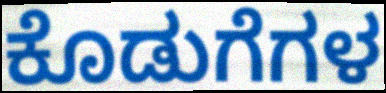
ಕೊಡುಗೆಗಳ